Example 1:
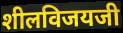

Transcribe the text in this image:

शीलविजयजी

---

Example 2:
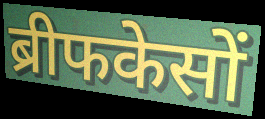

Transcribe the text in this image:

ब्रीफकेसों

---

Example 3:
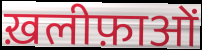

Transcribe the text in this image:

ख़लीफ़ाओं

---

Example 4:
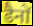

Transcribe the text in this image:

डैनों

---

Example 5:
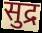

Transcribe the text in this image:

सुद्र